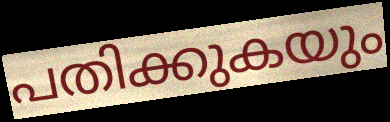
പതിക്കുകയും